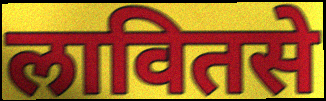
लावितसे